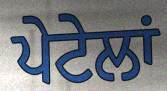
ਪੇਟੇਲਾਂ